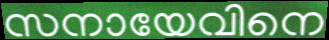
സനായേവിനെ